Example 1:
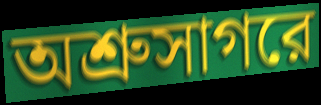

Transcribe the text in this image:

অশ্রুসাগরে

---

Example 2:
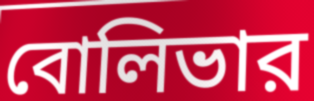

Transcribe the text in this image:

বোলিভার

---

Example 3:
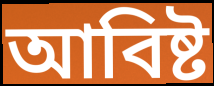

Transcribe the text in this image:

আবিষ্ট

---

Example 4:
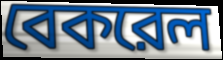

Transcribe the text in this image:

বেকরেল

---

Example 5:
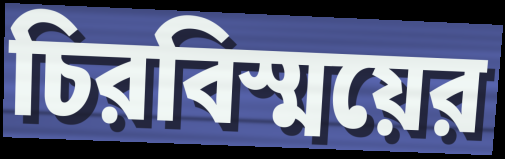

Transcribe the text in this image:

চিরবিস্ময়ের